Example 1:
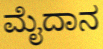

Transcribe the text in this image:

ಮೈದಾನ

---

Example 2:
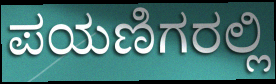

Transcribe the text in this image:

ಪಯಣಿಗರಲ್ಲಿ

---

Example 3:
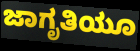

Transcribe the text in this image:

ಜಾಗೃತಿಯೂ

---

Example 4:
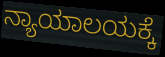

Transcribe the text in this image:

ನ್ಯಾಯಾಲಯಕ್ಕೆ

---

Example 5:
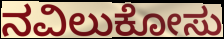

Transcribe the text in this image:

ನವಿಲುಕೋಸು